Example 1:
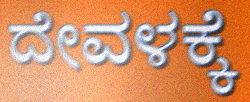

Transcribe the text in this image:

ದೇವಳಕ್ಕೆ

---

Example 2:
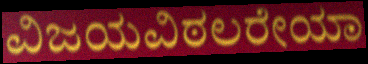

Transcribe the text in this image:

ವಿಜಯವಿಠಲರೇಯಾ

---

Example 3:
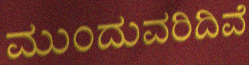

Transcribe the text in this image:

ಮುಂದುವರಿದಿವೆ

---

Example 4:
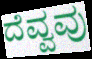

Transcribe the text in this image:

ದೆವ್ವವು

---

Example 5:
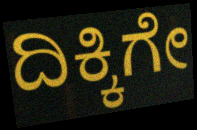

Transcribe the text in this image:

ದಿಕ್ಕಿಗೇ